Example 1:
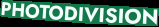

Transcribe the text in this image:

PHOTODIVISION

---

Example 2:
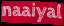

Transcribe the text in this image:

naaiyal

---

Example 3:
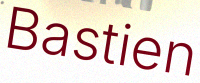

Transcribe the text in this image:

Bastien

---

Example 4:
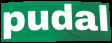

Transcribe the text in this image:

pudal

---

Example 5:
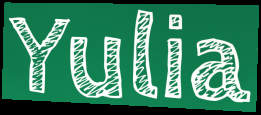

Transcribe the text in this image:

Yulia